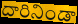
దారినిండా